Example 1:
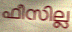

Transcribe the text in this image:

ഫീസില്ല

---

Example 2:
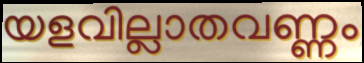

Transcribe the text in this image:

യളവില്ലാതവണ്ണം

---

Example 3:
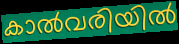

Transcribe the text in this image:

കാൽവരിയിൽ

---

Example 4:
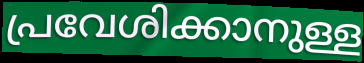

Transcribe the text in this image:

പ്രവേശിക്കാനുള്ള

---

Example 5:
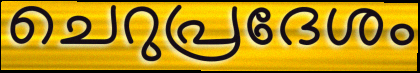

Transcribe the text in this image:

ചെറുപ്രദേശം